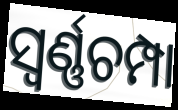
ସ୍ୱର୍ଣ୍ଣଚମ୍ପା